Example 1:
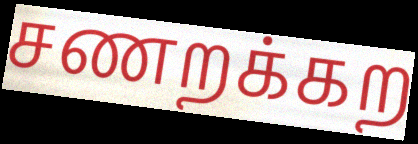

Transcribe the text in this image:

சணறக்கற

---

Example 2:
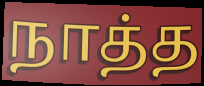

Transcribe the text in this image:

நாத்த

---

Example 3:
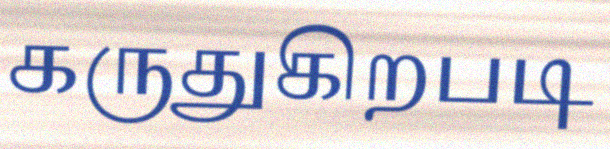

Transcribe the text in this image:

கருதுகிறபடி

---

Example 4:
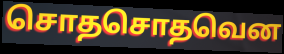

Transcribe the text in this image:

சொதசொதவென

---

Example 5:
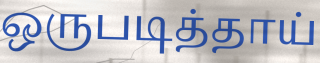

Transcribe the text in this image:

ஒருபடித்தாய்